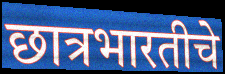
छात्रभारतीचे